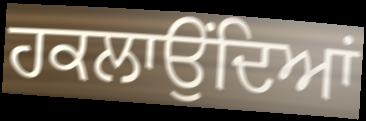
ਹਕਲਾਉਂਦਿਆਂ